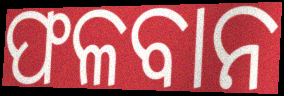
ଫଳବାନ